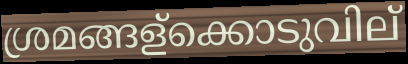
ശ്രമങ്ങള്ക്കൊടുവില്